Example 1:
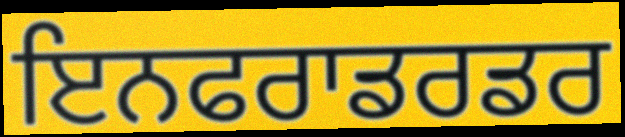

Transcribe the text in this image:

ਇਨਫਰਾਡਰਡਰ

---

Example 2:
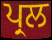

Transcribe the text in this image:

ਪ੍ਰਲ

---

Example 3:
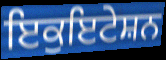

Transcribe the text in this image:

ਇਕੁਇਟੇਸ਼ਨ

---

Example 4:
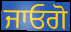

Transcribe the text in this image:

ਜਾਓਗੋ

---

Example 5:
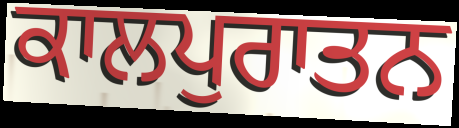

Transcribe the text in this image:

ਕਾਲਪੁਰਾਤਨ